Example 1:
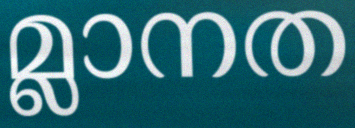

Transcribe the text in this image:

മ്ലാനത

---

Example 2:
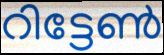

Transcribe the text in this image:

റിട്ടേൺ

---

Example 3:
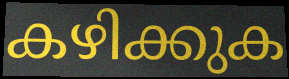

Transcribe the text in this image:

കഴിക്കുക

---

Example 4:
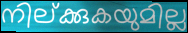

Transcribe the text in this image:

നില്ക്കുകയുമില്ല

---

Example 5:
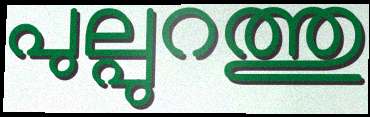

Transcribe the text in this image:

പുല്പുറത്തു